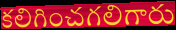
కలిగించగలిగారు